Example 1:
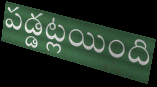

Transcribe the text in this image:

పడ్డట్లయింది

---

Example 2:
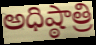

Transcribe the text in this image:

అధిష్ఠాత్రి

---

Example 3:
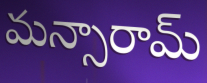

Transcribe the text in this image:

మన్సారామ్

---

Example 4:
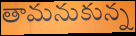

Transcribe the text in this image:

తామనుకున్న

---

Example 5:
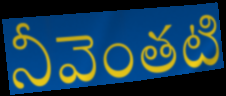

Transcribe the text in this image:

నీవెంతటి